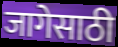
जागेसाठी